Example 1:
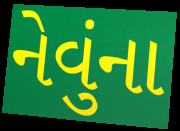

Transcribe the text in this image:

નેવુંના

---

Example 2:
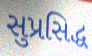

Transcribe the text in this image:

સુપ્રસિદ્ધ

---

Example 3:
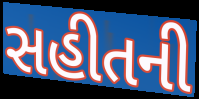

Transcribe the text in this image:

સહીતની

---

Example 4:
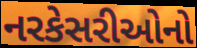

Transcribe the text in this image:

નરકેસરીઓનો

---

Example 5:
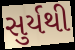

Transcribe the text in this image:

સુર્યથી